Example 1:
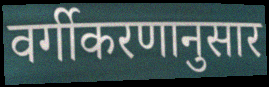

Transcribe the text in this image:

वर्गीकरणानुसार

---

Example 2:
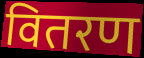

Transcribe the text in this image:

वितरण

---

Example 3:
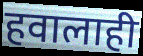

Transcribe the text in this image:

हवालाही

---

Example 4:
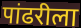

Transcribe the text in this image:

पांढरीला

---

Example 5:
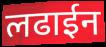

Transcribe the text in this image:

लढाईन